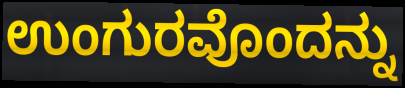
ಉಂಗುರವೊಂದನ್ನು